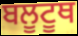
ਬਲੂਟੂਥ